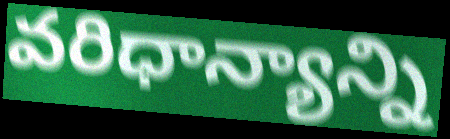
వరిధాన్యాన్ని